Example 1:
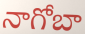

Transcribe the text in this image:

నాగోబా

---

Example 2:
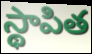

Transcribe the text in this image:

స్థాపిత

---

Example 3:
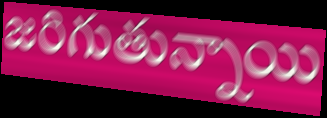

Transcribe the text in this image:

జరిగుతున్నాయి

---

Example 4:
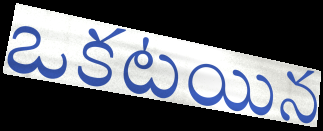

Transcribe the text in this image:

ఒకటయిన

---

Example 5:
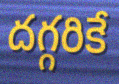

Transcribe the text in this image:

దగ్గరికే